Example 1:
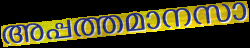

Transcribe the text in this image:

അപ്പത്തമാനസാ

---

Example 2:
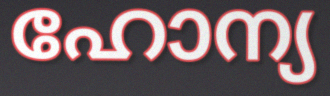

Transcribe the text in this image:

ഹോന്യ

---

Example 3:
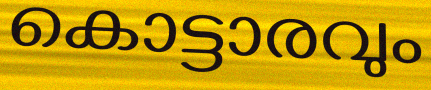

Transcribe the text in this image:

കൊട്ടാരവും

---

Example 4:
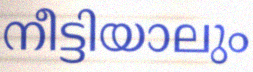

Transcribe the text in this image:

നീട്ടിയാലും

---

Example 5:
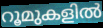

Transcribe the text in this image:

റൂമുകളിൽ